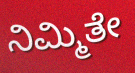
ನಿಮ್ಮಿತೇ